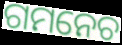
ଗମନେଚ